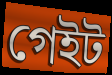
গেইট